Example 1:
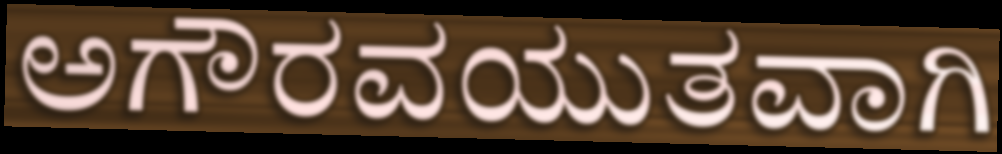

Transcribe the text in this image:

ಅಗೌರವಯುತವಾಗಿ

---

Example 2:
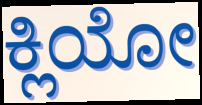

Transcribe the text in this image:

ಕ್ಲಿಯೋ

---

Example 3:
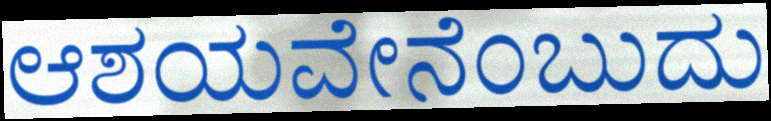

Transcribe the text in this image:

ಆಶಯವೇನೆಂಬುದು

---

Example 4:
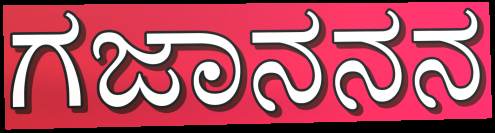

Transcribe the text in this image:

ಗಜಾನನನ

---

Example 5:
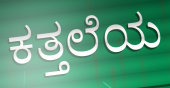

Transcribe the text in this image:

ಕತ್ತಲೆಯ